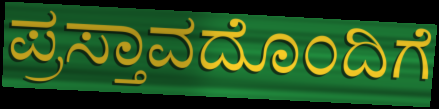
ಪ್ರಸ್ತಾವದೊಂದಿಗೆ